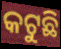
କଟୁଛି